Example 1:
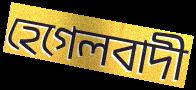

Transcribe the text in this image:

হেগেলবাদী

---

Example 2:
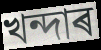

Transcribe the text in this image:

খন্দাৰ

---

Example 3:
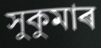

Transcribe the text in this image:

সুকুমাৰ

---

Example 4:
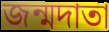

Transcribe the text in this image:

জন্মদাতা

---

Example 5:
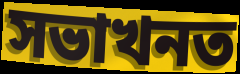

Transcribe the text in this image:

সভাখনত